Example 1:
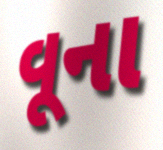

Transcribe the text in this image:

વૂના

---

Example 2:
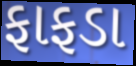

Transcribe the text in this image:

ફાફડા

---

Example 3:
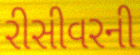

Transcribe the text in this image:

રીસીવરની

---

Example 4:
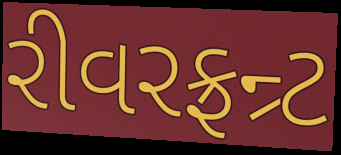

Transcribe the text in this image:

રીવરફ્રન્ર્ટ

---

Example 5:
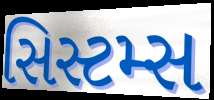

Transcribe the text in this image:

સિસ્ટમ્સ